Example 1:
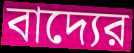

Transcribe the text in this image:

বাদ্যের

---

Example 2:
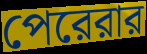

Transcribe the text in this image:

পেরেরার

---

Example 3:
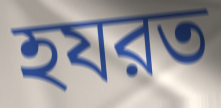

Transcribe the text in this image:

হযরত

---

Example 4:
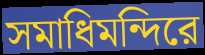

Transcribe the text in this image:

সমাধিমন্দিরে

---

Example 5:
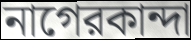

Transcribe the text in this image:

নাগেরকান্দা